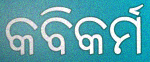
କବିକର୍ମ